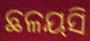
ଛଳୟସି